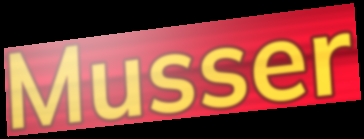
Musser